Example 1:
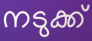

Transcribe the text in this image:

നടുക്ക്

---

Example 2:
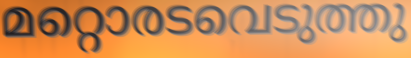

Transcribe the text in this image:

മറ്റൊരടവെടുത്തു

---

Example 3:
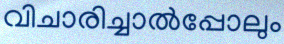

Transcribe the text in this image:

വിചാരിച്ചാൽപ്പോലും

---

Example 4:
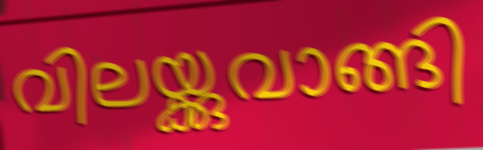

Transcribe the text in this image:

വിലയ്ക്കുവാങ്ങി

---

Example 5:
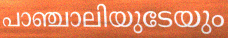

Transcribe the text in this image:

പാഞ്ചാലിയുടേയും